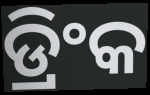
ଡ୍ରିଂକ